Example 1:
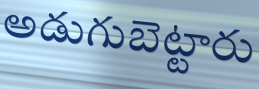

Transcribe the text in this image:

అడుగుబెట్టారు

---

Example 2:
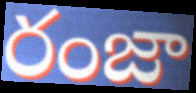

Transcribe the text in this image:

రంజా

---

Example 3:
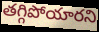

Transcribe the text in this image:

తగ్గిపోయారని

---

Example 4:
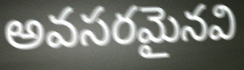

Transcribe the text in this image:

అవసరమైనవి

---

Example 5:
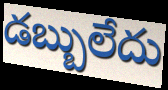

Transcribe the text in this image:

డబ్బులేదు